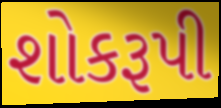
શોકરૂપી